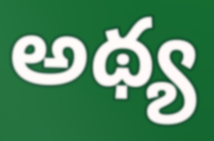
అథ్య